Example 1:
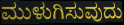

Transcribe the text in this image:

ಮುಳುಗಿಸುವುದು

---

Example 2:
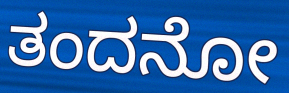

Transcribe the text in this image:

ತಂದನೋ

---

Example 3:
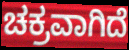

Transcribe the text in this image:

ಚಕ್ರವಾಗಿದೆ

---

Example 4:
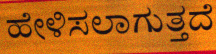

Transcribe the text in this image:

ಹೇಳಿಸಲಾಗುತ್ತದೆ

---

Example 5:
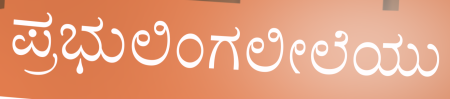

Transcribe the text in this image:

ಪ್ರಭುಲಿಂಗಲೀಲೆಯು